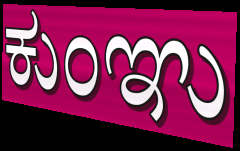
ಕುಂಞು